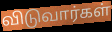
விடுவார்கள்